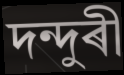
দন্দুৰী